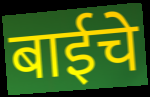
बाईचे